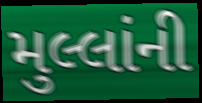
મુલ્લાંની